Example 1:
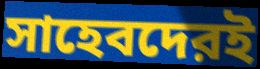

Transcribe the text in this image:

সাহেবদেরই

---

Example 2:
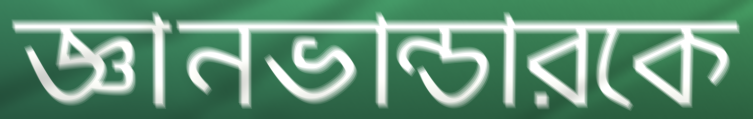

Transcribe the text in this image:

জ্ঞানভান্ডারকে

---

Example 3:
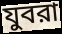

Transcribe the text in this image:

যুবরা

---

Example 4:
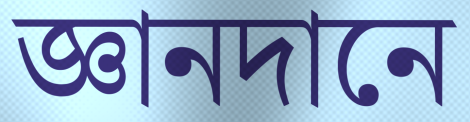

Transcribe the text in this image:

জ্ঞানদানে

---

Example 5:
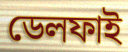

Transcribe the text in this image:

ডেলফাই